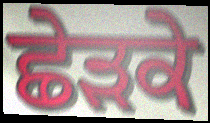
ਛੇੜਕੇ